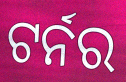
ଟର୍ନର